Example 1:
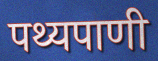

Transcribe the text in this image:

पथ्यपाणी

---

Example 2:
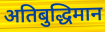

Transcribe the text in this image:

अतिबुद्धिमान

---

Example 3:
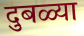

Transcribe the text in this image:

दुबळ्या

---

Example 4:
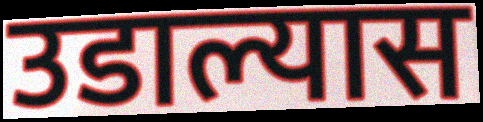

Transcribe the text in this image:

उडाल्यास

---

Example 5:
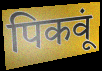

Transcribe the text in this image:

पिकवूं